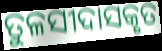
ତୁଳସୀଦାସକୃତ